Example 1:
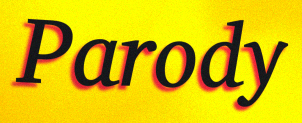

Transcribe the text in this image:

Parody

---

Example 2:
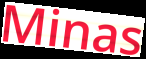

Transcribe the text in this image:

Minas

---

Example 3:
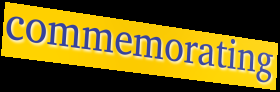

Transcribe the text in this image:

commemorating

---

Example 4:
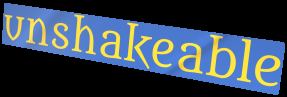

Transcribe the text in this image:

unshakeable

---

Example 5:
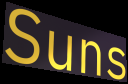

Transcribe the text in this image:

Suns